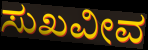
ಸುಖವೀವ